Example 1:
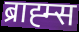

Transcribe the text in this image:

ब्राह्म्स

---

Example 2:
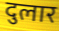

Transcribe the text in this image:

दुलार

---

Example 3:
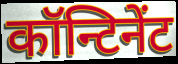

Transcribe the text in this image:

कॉन्टिनेंट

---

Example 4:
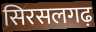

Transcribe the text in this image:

सिरसलगढ़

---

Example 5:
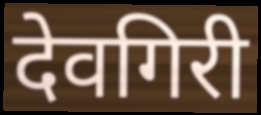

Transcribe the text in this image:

देवगिरी